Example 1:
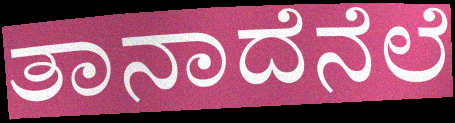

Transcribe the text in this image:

ತಾನಾದೆನೆಲೆ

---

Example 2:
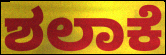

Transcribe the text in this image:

ಶಲಾಕೆ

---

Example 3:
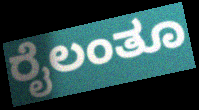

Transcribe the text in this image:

ರೈಲಂತೂ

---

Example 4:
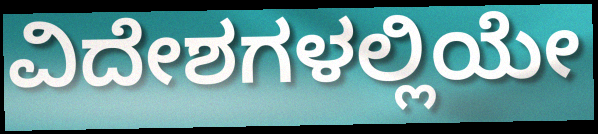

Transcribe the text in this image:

ವಿದೇಶಗಳಲ್ಲಿಯೇ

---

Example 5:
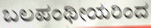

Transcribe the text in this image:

ಬಲಪಂಥೀಯರಿಂದ